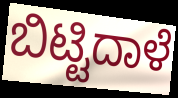
ಬಿಟ್ಟಿದಾಳೆ